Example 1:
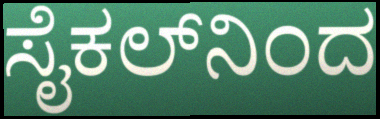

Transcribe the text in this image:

ಸೈಕಲ್‌ನಿಂದ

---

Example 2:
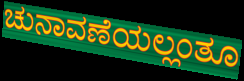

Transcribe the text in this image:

ಚುನಾವಣೆಯಲ್ಲಂತೂ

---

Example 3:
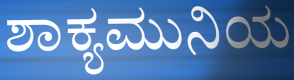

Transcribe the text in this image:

ಶಾಕ್ಯಮುನಿಯ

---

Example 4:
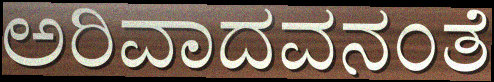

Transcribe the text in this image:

ಅರಿವಾದವನಂತೆ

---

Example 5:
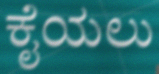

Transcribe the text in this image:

ಕೈಯಲು